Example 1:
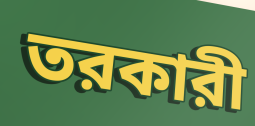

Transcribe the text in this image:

তরকারী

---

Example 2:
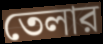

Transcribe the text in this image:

তেলার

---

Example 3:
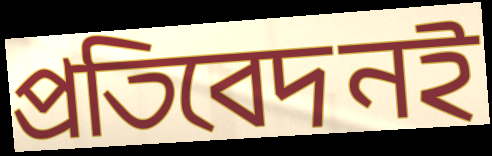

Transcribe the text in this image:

প্রতিবেদনই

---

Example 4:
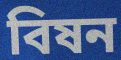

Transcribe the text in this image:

বিষন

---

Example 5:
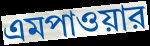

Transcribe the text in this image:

এমপাওয়ার